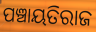
ପଞ୍ଚାୟତିରାଜ